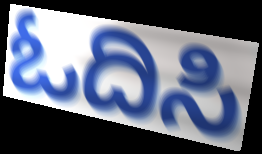
ಓದಿಸಿ